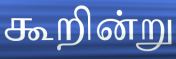
கூறின்று